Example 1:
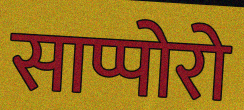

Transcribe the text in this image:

साप्पोरो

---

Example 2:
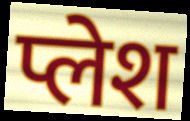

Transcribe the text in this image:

प्लेश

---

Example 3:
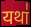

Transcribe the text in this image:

यथा॑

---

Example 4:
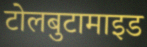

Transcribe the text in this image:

टोलबुटामाइड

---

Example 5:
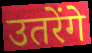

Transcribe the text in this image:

उतरेंगे